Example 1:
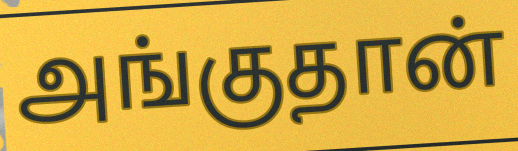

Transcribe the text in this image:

அங்குதான்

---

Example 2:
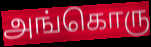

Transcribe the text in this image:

அங்கொரு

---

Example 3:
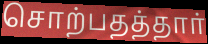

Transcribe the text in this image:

சொற்பதத்தார்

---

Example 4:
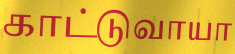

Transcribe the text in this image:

காட்டுவாயா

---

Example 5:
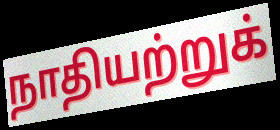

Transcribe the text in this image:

நாதியற்றுக்